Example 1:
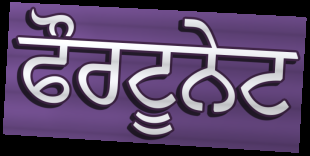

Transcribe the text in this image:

ਫੌਰਟੂਨੇਟ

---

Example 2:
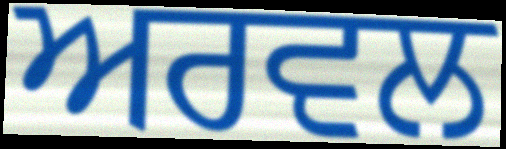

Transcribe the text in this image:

ਅਰਵਲ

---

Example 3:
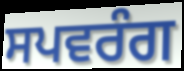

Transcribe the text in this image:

ਸਪਵਰੰਗ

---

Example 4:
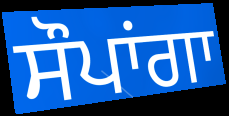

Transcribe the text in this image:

ਸੌਪਾਂਗਾ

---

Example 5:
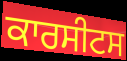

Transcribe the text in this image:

ਕਾਰਸੀਟਸ